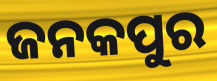
ଜନକପୁର